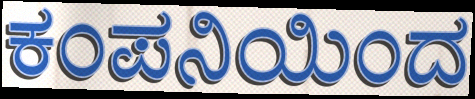
ಕಂಪನಿಯಿಂದ